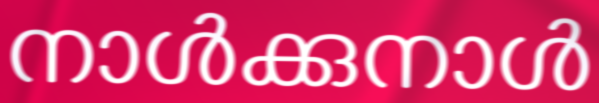
നാൾക്കുനാൾ